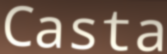
Casta